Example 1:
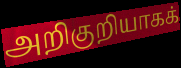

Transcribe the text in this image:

அறிகுறியாகக்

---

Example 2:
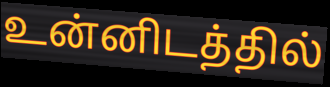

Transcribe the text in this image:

உன்னிடத்தில்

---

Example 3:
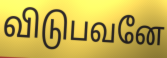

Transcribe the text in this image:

விடுபவனே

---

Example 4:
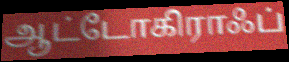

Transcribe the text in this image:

ஆட்டோகிராஃப்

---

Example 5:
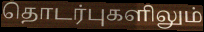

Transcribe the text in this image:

தொடர்புகளிலும்